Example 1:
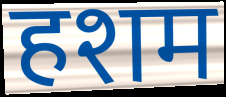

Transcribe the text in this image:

हशम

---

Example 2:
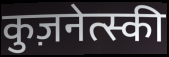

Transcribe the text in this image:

कुज़नेत्स्की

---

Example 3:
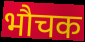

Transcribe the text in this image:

भौचक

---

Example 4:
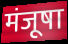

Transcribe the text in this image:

मंजूषा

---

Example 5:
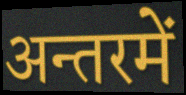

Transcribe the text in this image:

अन्तरमें